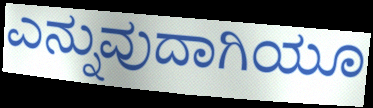
ಎನ್ನುವುದಾಗಿಯೂ